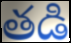
తడి